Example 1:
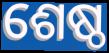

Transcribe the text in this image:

ଶେଷ୍ଠ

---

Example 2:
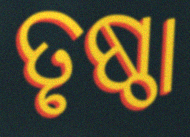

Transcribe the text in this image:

ତୃଷ୍ଠା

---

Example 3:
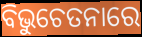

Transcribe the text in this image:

ବିଭୁଚେତନାରେ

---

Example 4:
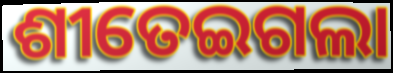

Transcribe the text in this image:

ଶୀତେଇଗଲା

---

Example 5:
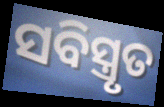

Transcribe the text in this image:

ସବିସ୍ତ୍ରୃତ